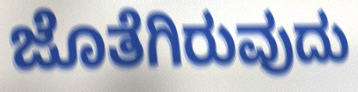
ಜೊತೆಗಿರುವುದು